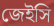
জেইসি